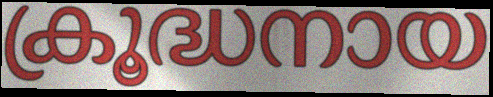
ക്രൂദ്ധനായ